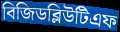
বিজিডব্লিউটিএফ